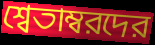
শ্বেতাম্বরদের